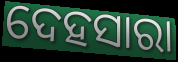
ଦେହସାରା